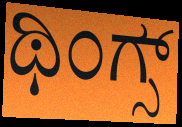
ಥಿಂಗ್ಸ್